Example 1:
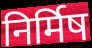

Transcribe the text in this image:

निर्मिष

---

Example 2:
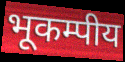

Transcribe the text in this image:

भूकम्पीय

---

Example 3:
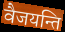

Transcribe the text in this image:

वैजयन्ति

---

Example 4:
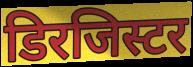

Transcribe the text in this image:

डिरजिस्टर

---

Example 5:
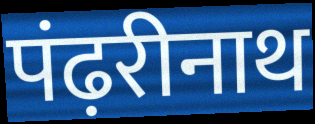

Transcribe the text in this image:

पंढ़रीनाथ